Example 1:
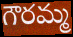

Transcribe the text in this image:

గౌరమ్మ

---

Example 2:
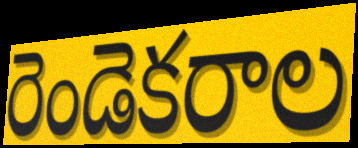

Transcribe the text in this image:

రెండెకరాల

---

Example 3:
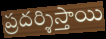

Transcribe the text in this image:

ప్రదర్శిస్తాయి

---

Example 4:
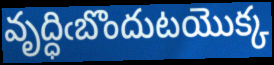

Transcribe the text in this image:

వృద్ధిఁబొందుటయొక్క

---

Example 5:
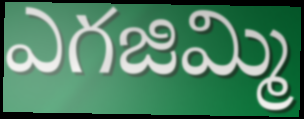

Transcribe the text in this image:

ఎగజిమ్మి